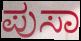
ಪುಸಾ